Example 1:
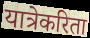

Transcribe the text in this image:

यात्रेकरिता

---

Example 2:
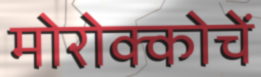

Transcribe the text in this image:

मोरोक्कोचें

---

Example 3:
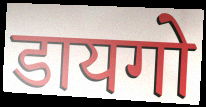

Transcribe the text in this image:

डायगो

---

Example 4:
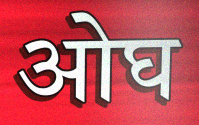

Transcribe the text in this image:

ओघ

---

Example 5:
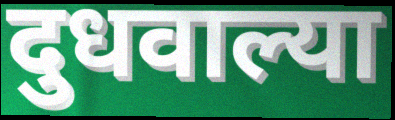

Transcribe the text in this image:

दुधवाल्या